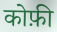
कोफ़ी